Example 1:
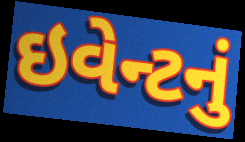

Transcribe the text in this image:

ઇવેન્ટનું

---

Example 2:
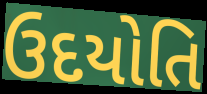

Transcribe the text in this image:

ઉદયોતિ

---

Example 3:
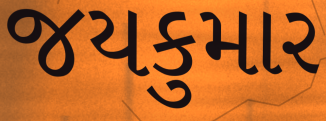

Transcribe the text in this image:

જયકુમાર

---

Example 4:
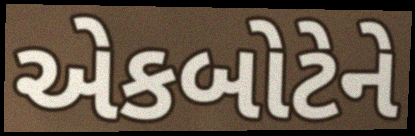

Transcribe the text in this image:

એકબોટેને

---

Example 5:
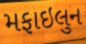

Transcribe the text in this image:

મફાઇલુન